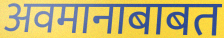
अवमानाबाबत